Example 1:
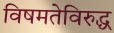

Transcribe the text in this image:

विषमतेविरुद्ध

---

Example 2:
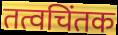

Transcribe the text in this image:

तत्वचिंतक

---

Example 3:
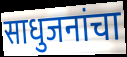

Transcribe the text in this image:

साधुजनांचा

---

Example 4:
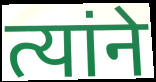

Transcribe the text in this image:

त्यांने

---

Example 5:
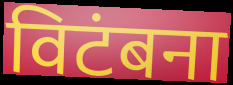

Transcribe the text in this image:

विटंबना